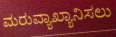
ಮರುವ್ಯಾಖ್ಯಾನಿಸಲು